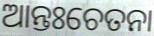
ଆନ୍ତଃଚେତନା